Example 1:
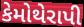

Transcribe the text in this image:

કેમોથેરાપી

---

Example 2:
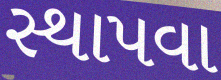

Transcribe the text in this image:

સ્થાપવા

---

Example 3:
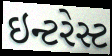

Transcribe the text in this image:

ઇન્ટરેસ્ટ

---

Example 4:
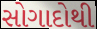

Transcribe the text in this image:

સોગાદોથી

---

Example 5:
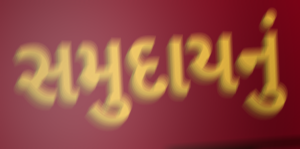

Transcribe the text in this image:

સમુદાયનું